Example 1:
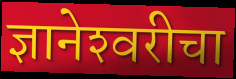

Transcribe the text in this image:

ज्ञानेश्वरीचा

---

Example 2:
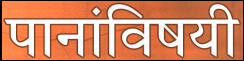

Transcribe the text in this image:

पानांविषयी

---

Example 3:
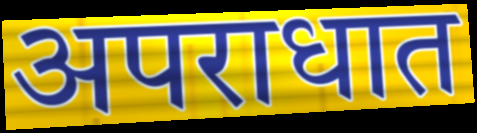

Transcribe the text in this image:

अपराधात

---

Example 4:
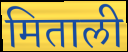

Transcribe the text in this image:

मिताली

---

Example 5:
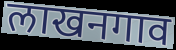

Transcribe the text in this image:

लाखनगाव